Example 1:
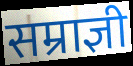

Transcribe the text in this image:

सम्राज्ञी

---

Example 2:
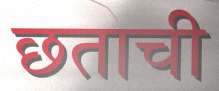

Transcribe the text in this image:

छताची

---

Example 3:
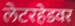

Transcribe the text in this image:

लेटरहेडवर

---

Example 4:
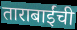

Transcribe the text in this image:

ताराबाईंची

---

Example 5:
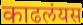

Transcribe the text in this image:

काढलंयस